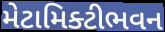
મેટામિક્ટીભવન